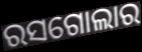
ରସଗୋଲାର